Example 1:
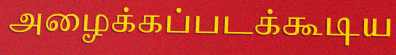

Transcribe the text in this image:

அழைக்கப்படக்கூடிய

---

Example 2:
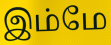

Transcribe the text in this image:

இம்மே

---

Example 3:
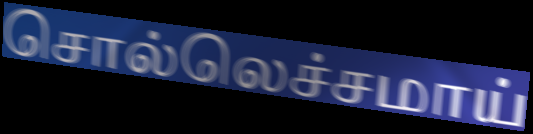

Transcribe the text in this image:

சொல்லெச்சமாய்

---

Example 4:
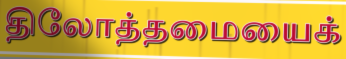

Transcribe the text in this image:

திலோத்தமையைக்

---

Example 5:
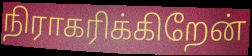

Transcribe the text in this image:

நிராகரிக்கிறேன்